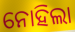
ନୋହିଲା